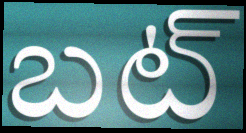
బట్